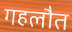
गहलौत